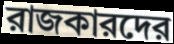
রাজকারদের